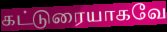
கட்டுரையாகவே